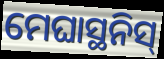
ମେଘାସ୍ଥନିସ୍